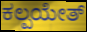
ಕಲ್ಪಯೇತ್